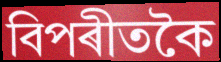
বিপৰীতকৈ